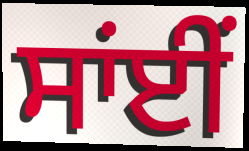
ਸਾਂਈਂ